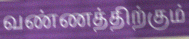
வண்ணத்திற்கும்